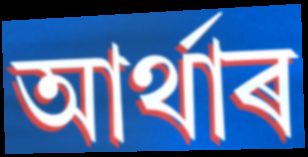
আৰ্থাৰ